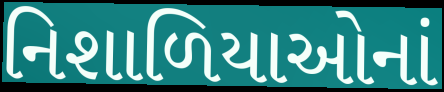
નિશાળિયાઓનાં